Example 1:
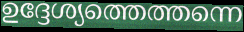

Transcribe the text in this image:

ഉദ്ദേശ്യത്തെത്തന്നെ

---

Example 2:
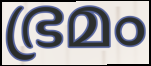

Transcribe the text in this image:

ഭ്രമം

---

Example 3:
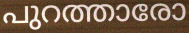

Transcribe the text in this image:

പുറത്താരോ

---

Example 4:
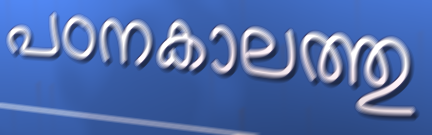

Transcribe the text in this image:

പഠനകാലത്തു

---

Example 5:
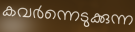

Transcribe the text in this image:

കവർന്നെടുക്കുന്ന